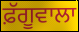
ਫ਼ੱਗੂਵਾਲਾ